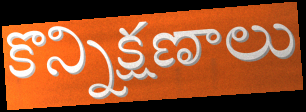
కొన్నిక్షణాలు